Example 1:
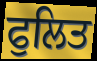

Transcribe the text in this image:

ਫੁਲਿਤ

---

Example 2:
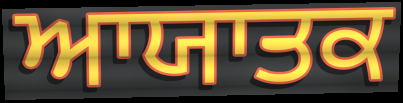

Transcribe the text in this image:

ਆਯਾਤਕ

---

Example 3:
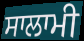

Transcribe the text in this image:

ਸਾਲਾਮੀ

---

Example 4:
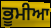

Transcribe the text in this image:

ਭੂਮੀਆ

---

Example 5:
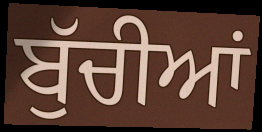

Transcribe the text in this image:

ਬੁੱਚੀਆਂ